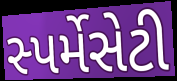
સ્પર્મેસેટી